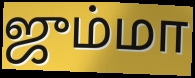
ஜும்மா